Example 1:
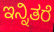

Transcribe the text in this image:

ಇನ್ನಿತರೆ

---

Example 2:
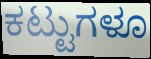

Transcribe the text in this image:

ಕಟ್ಟುಗಳೂ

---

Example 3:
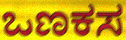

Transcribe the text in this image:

ಒಣಕಸ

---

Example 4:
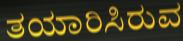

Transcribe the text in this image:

ತಯಾರಿಸಿರುವ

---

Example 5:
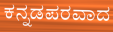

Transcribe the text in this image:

ಕನ್ನಡಪರವಾದ